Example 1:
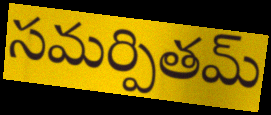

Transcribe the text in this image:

సమర్పితమ్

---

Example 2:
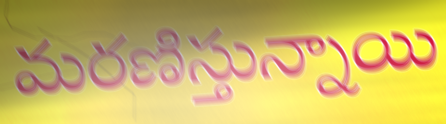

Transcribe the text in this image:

మరణిస్తున్నాయి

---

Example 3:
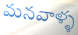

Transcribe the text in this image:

మనవాళ్ళ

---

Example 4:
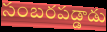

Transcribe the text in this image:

సంబరపడ్డాడు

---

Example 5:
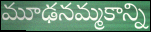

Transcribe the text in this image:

మూఢనమ్మకాన్ని